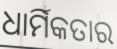
ଧାର୍ମିକତାର